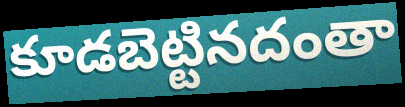
కూడబెట్టినదంతా